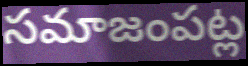
సమాజంపట్ల